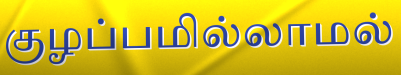
குழப்பமில்லாமல்